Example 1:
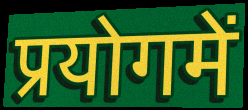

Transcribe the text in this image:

प्रयोगमें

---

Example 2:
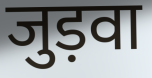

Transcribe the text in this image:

जुड़वा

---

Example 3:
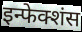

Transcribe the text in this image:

इन्फेक्शंस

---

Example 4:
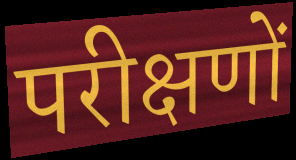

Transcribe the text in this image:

परीक्षणों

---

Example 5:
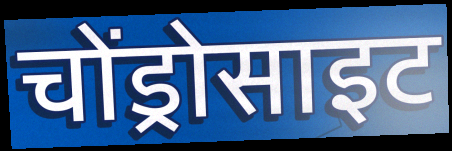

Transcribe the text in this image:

चोंड्रोसाइट